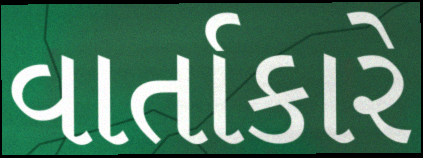
વાર્તાકારે